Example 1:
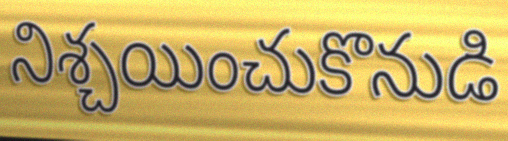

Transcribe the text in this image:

నిశ్చయించుకొనుడి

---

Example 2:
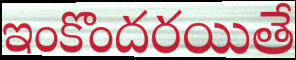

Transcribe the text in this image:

ఇంకొందరయితే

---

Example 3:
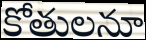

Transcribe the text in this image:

కోతులనూ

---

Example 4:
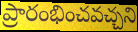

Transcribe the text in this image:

ప్రారంభించవచ్చని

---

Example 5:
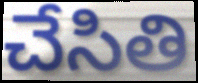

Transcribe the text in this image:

చేసితి